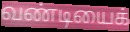
வண்டியைக்